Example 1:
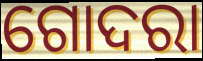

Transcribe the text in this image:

ଗୋଦରା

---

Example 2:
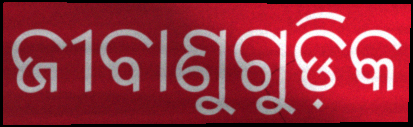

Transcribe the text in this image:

ଜୀବାଣୁଗୁଡ଼ିକ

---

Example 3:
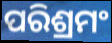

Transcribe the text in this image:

ପରିଶ୍ରମଂ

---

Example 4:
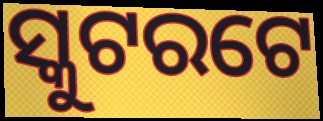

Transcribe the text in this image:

ସ୍କୁଟରଟେ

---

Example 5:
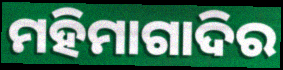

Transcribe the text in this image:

ମହିମାଗାଦିର